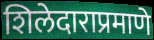
शिलेदाराप्रमाणे